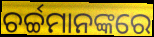
ଚର୍ଚ୍ଚମାନଙ୍କରେ